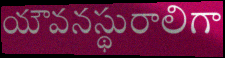
యౌవనస్థురాలిగా